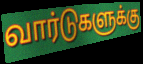
வார்டுகளுக்கு